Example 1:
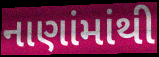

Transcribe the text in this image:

નાણાંમાંથી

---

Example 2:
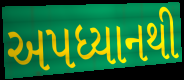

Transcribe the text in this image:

અપધ્યાનથી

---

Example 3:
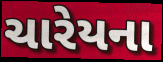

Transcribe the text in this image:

ચારેયના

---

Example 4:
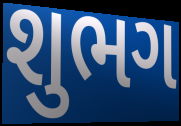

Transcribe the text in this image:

શુભગ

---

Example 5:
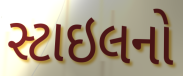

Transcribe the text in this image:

સ્ટાઇલનો